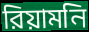
রিয়ামনি